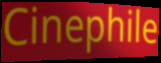
Cinephile